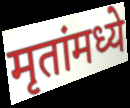
मृतांमध्ये